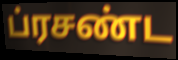
ப்ரசண்ட